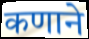
कणाने